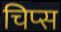
चिप्‍स